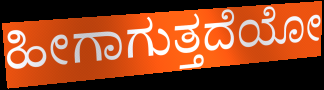
ಹೀಗಾಗುತ್ತದೆಯೋ